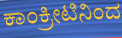
ಕಾಂಕ್ರೀಟಿನಿಂದ